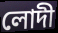
লোদী